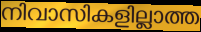
നിവാസികളില്ലാത്ത